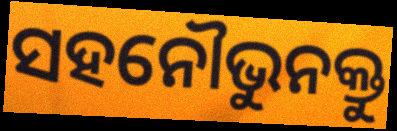
ସହନୌଭୁନକ୍ତୁ